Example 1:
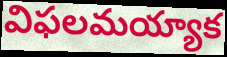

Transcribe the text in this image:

విఫలమయ్యాక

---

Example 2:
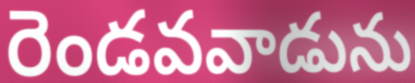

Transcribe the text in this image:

రెండవవాడును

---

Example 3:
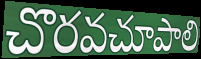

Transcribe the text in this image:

చొరవచూపాలి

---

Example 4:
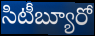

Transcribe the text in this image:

సిటీబ్యూరో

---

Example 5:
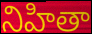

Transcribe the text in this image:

నిహితా